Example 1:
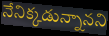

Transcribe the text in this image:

నేనిక్కడున్నానని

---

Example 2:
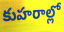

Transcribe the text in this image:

కుహరాల్లో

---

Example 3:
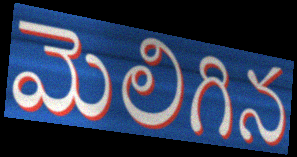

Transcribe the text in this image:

మెలిగిన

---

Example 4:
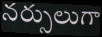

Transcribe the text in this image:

నర్సులుగా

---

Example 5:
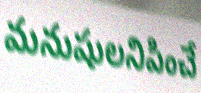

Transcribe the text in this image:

మనుషులనిపించే